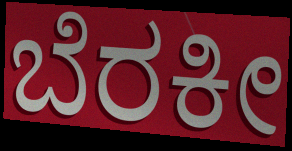
ಬೆರಕೀ